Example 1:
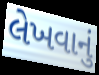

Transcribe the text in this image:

લેખવાનું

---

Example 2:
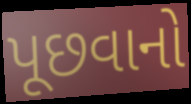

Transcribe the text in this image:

પૂછવાનો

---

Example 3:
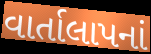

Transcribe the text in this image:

વાર્તાલાપનાં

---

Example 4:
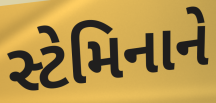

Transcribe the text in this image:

સ્ટેમિનાને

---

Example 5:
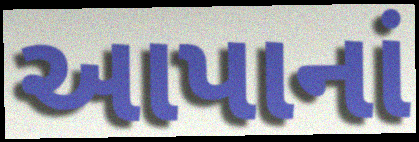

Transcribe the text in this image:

આપાનાં